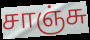
சாஞ்சு